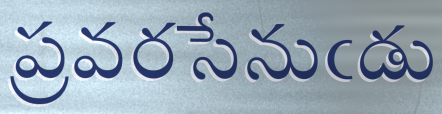
ప్రవరసేనుఁడు